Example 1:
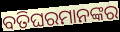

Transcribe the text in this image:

ବତିଘରମାନଙ୍କର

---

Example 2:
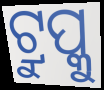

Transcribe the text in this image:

ଟ୍ରୁପ୍କୁ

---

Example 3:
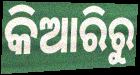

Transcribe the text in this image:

କିଆରିରୁ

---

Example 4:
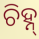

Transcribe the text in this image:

ଚିହ୍ନ୍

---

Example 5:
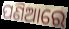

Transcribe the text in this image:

ପଣିଆରେ